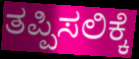
ತಪ್ಪಿಸಲಿಕ್ಕೆ